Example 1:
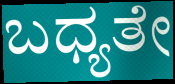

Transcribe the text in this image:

ಬಧ್ಯತೇ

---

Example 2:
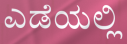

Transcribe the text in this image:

ಎಡೆಯಲ್ಲಿ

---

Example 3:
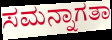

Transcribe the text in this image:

ಸಮನ್ನಾಗತಾ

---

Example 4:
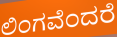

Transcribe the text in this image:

ಲಿಂಗವೆಂದರೆ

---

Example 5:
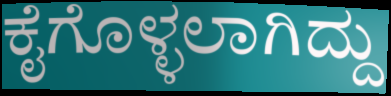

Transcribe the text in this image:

ಕೈಗೊಳ್ಳಲಾಗಿದ್ದು